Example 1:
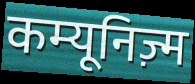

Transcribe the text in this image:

कम्यूनिज़्म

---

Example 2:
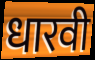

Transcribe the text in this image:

धारवी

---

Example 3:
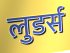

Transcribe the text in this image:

लुडर्स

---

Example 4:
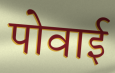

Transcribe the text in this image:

पोवाई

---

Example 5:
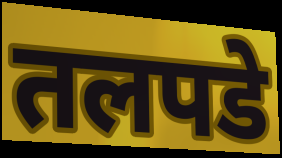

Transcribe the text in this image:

तलपडे